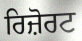
ਰਿਜ਼ੋਰਟ